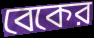
বেকের